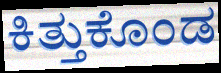
ಕಿತ್ತುಕೊಂಡ